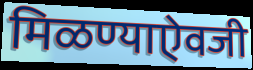
मिळण्याऐवजी